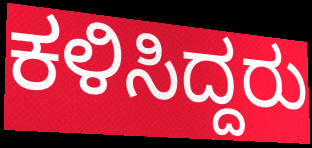
ಕಳಿಸಿದ್ದರು